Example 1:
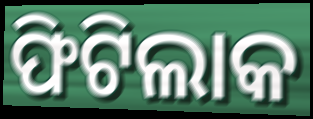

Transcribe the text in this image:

ଫିଟିଲାକ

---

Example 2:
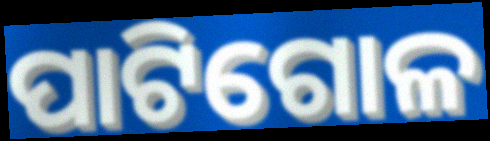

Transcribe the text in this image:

ପାଟିଗୋଳ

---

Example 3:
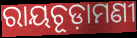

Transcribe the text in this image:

ରାୟଚୂଡ଼ାମଣୀ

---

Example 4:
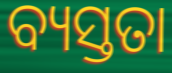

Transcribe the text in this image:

ବ୍ୟସ୍ତତା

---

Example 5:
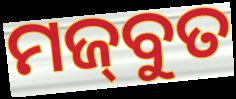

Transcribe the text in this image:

ମଜ୍‌ବୁତ